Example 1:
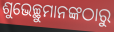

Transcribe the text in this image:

ଶୁଭେଚ୍ଛୁମାନଙ୍କଠାରୁ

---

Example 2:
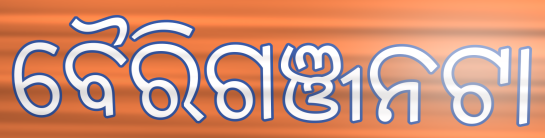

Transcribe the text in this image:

ବୈରିଗଞ୍ଜନଟା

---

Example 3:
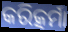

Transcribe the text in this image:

କରିତ୍କର୍ମା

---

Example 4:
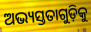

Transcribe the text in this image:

ଅଭ୍ୟସ୍ତତାଗୁଡ଼ିକୁ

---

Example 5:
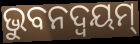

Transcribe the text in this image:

ଭୁବନଦ୍ଵୟମ୍